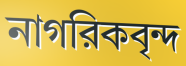
নাগরিকবৃন্দ